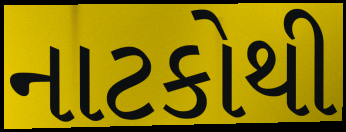
નાટકોથી